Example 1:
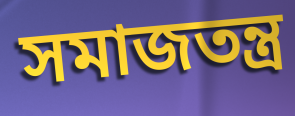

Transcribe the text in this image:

সমাজতন্ত্ৰ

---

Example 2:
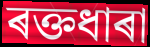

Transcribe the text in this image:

ৰক্তধাৰা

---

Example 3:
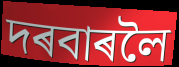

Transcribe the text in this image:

দৰবাৰলৈ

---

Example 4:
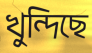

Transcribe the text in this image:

খুন্দিছে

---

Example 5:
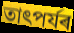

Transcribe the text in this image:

তাৎপৰ্যৰ